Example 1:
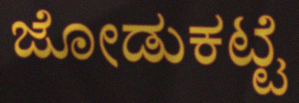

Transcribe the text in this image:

ಜೋಡುಕಟ್ಟೆ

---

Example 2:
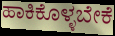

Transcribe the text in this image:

ಹಾಕಿಕೊಳ್ಳಬೇಕೆ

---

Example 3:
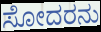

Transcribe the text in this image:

ಸೋದರನು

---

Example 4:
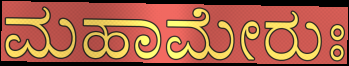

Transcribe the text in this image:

ಮಹಾಮೇರುಃ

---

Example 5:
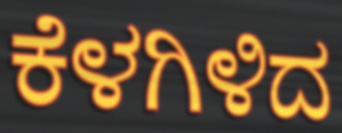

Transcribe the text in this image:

ಕೆಳಗಿಳಿದ